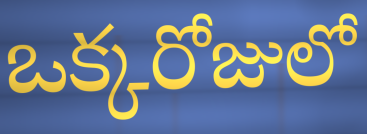
ఒక్కరోజులో